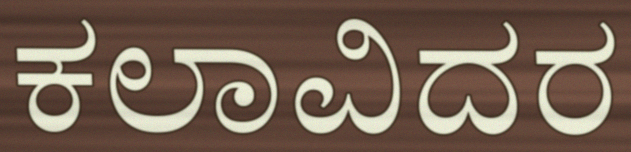
ಕಲಾವಿದರ